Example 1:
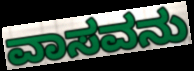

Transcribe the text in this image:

ವಾಸವನು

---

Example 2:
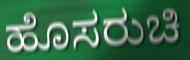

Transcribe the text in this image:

ಹೊಸರುಚಿ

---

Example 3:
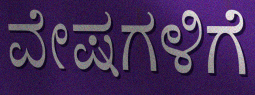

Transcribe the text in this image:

ವೇಷಗಳಿಗೆ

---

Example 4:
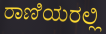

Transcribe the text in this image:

ರಾಣಿಯರಲ್ಲಿ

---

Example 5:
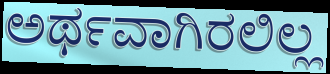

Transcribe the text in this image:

ಅರ್ಥವಾಗಿರಲಿಲ್ಲ